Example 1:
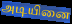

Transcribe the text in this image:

அடியினை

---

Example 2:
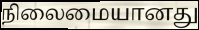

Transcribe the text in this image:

நிலைமையானது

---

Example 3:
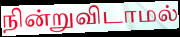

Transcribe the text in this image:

நின்றுவிடாமல்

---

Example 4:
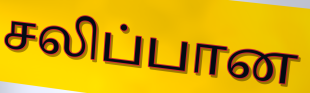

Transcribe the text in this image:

சலிப்பான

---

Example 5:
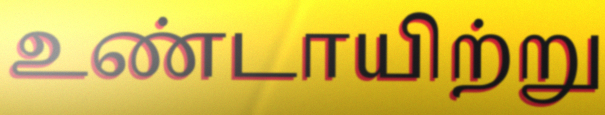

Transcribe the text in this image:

உண்டாயிற்று